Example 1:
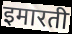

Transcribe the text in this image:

इमारती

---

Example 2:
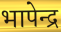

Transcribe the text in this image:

भापेन्द्र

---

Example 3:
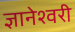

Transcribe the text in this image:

ज्ञानेश्वरी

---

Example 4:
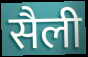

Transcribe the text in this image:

सैली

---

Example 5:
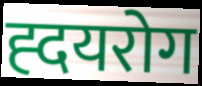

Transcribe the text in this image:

ह्दयरोग